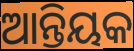
ଆନ୍ତିୟକ